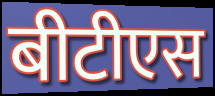
बीटीएस